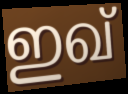
ഇഖ്